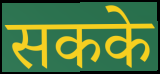
सकके